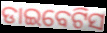
ଡାଇବେଟିସ